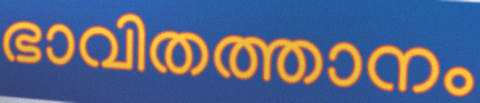
ഭാവിതത്താനം